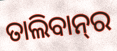
ତାଲିବାନ୍‌ର